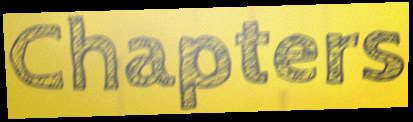
Chapters